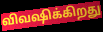
விவஷிக்கிறது